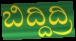
ಬಿದ್ದಿದ್ರಿ